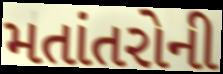
મતાંતરોની